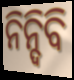
ନିନ୍ଦିବି